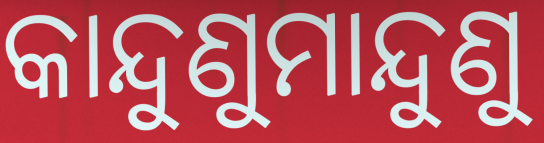
କାନ୍ଦୁଣୁମାନ୍ଦୁଣୁ